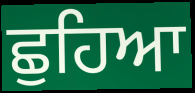
ਛੁਹਿਆ